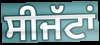
ਸੀਜੱਟਾਂ